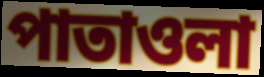
পাতাওলা